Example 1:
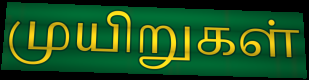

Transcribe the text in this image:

முயிறுகள்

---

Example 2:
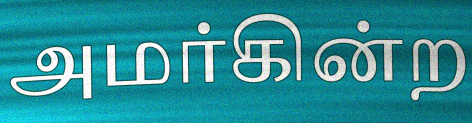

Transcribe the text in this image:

அமர்கின்ற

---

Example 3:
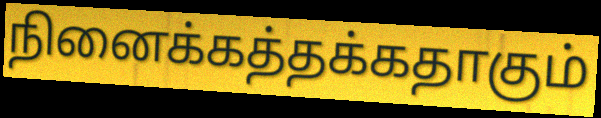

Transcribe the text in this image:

நினைக்கத்தக்கதாகும்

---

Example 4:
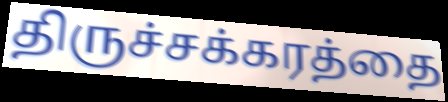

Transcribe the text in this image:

திருச்சக்கரத்தை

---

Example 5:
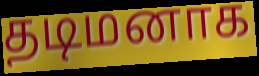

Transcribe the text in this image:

தடிமனாக